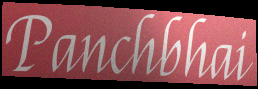
Panchbhai